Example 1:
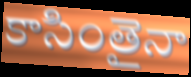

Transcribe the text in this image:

కాసింతైనా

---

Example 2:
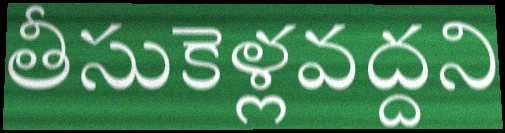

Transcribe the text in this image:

తీసుకెళ్లవద్దని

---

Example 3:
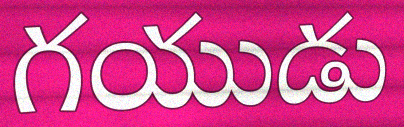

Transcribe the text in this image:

గయుడు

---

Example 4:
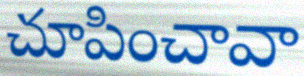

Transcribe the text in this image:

చూపించావా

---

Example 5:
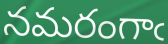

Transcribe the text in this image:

నమరంగాఁ